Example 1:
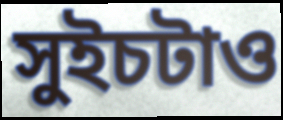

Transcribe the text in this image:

সুইচটাও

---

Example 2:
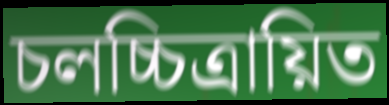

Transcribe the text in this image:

চলচ্চিত্রায়িত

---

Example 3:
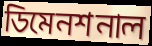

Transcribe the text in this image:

ডিমেনশনাল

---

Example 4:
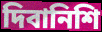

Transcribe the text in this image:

দিবানিশি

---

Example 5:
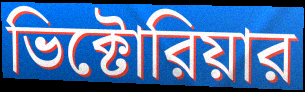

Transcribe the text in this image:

ভিক্টোরিয়ার